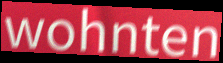
wohnten